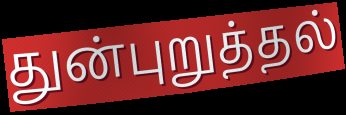
துன்புறுத்தல்